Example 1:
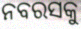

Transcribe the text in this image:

ନବରସକୁ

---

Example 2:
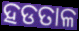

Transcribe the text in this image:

ହଡତାଳ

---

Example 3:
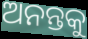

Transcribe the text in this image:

ଅନନ୍ତକୁ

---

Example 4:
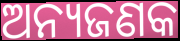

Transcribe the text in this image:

ଅନ୍ୟଜଣକ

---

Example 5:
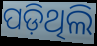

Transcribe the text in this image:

ପଡ଼ିଥିଲି